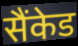
सैंकेड